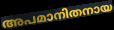
അപമാനിതനായ